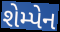
શેમ્પેન